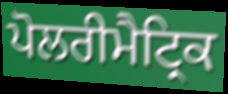
ਪੋਲਰੀਮੈਟ੍ਰਿਕ